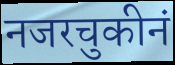
नजरचुकीनं